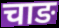
चाङ